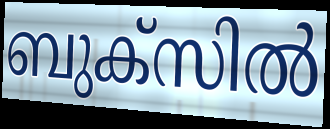
ബുക്സിൽ